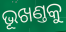
ଭୂଖଣ୍ତକୁ